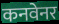
कनवेनर